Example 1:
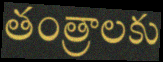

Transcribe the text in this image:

తంత్రాలకు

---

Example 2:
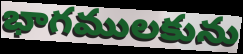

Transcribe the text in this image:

భాగములకును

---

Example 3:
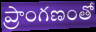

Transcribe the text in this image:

ప్రాంగణంతో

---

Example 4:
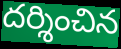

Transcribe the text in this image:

దర్శించిన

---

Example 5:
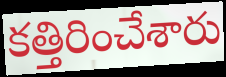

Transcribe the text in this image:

కత్తిరించేశారు